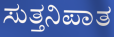
ಸುತ್ತನಿಪಾತ